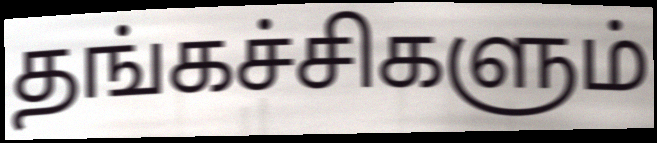
தங்கச்சிகளும்